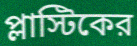
প্লাস্টিকের